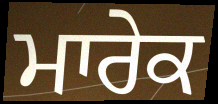
ਮਾਰੇਕ